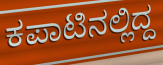
ಕಪಾಟಿನಲ್ಲಿದ್ದ